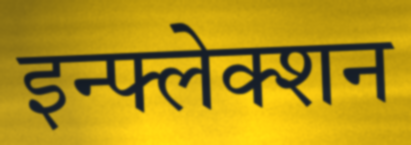
इन्फ्लेक्शन